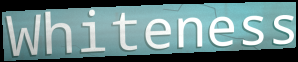
Whiteness